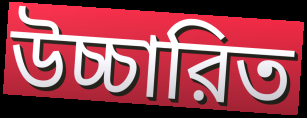
উচ্চারিত